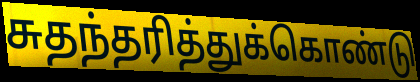
சுதந்தரித்துக்கொண்டு